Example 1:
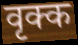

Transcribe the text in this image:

वृक्क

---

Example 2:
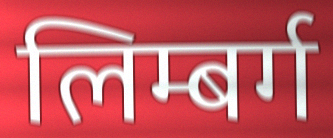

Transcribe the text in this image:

लिम्बर्ग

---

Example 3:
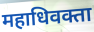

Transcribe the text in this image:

महाधिवक्ता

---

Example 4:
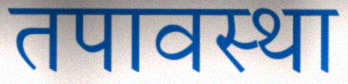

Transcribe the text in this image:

तपावस्था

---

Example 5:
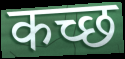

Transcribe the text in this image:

कच्छ